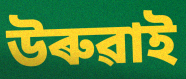
উৰুৱাই